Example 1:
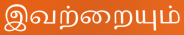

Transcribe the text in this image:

இவற்றையும்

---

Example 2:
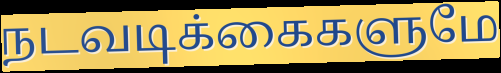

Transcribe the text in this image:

நடவடிக்கைகளுமே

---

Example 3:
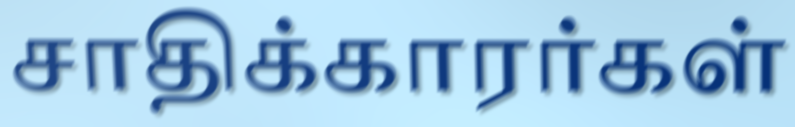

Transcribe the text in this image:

சாதிக்காரர்கள்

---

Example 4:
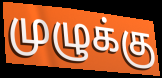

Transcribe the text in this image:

முழுக்கு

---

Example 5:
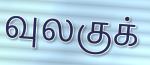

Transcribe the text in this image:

வுலகுக்